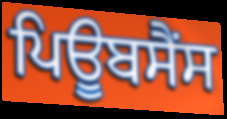
ਪਿਊਬਸੈਂਸ